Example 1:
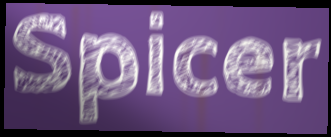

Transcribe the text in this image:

Spicer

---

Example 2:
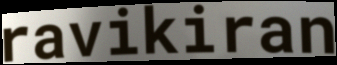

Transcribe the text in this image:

ravikiran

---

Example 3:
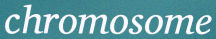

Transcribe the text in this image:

chromosome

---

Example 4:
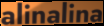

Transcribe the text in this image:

alinalina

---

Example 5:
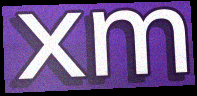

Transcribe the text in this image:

xm